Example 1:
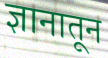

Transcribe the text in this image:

ज्ञानातून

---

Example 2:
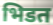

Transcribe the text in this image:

भिडत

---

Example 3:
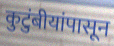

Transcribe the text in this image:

कुटुंबीयांपासून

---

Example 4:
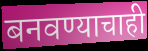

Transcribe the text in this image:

बनवण्याचाही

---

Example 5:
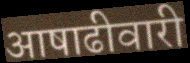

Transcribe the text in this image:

आषाढीवारी